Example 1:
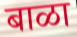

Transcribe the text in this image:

बाळा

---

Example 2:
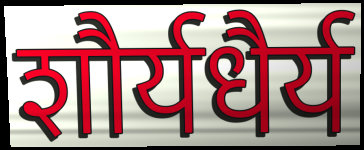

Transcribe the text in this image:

शौर्यधैर्य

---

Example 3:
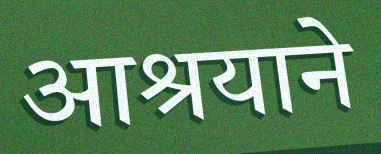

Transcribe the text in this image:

आश्रयाने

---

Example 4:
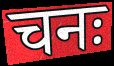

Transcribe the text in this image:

चनः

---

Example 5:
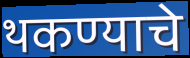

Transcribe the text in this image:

थकण्याचे